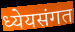
ध्येयसंगत